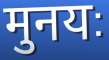
मुनयः